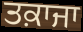
ਤਕ਼ਾਜਾ